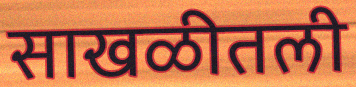
साखळीतली